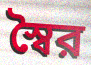
স্বৈর